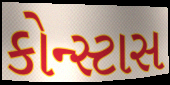
કોન્સ્ટાસ